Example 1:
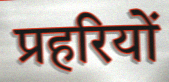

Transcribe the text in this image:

प्रहरियों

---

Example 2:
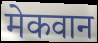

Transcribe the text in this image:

मेकवान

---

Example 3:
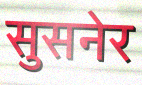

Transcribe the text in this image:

सुसनेर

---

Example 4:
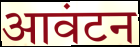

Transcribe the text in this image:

आवंटन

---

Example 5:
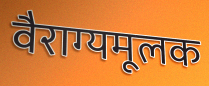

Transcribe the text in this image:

वैराग्यमूलक